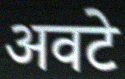
अवटे